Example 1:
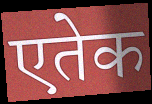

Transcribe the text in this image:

एतेक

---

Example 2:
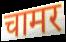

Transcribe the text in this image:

चामर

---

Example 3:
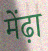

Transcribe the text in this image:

मेंढ़ा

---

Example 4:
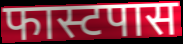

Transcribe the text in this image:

फास्टपास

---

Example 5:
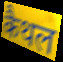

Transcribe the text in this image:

कैथल